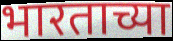
भारताच्या